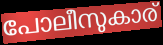
പോലീസുകാര്